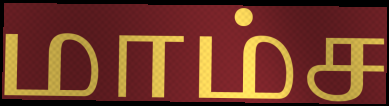
மாம்ச